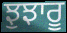
ਝੁਝਾਰੂ